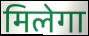
मिलेगा